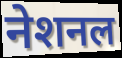
नेशनल